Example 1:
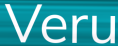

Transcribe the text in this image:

Veru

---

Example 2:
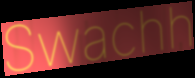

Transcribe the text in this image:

Swachh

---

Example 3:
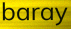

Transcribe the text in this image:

baray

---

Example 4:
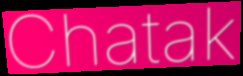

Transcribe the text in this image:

Chatak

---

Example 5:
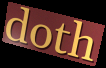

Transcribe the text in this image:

doth